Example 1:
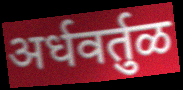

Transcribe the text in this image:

अर्धवर्तुळ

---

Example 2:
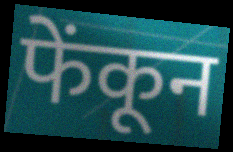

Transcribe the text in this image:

फेंकून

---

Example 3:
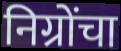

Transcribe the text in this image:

निग्रोंचा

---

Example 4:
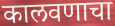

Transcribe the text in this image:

कालवणाचा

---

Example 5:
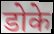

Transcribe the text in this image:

डोके